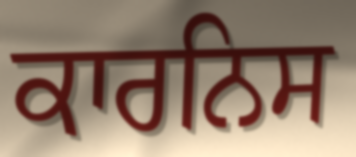
ਕਾਰਨਿਸ